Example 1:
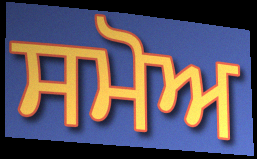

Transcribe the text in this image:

ਸਮੋਅ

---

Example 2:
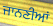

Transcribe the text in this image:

ਜਾਨਣੀਆਂ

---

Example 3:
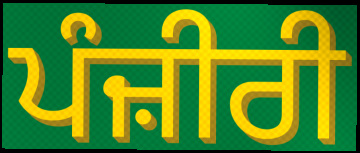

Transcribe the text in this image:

ਪੰਜ਼ੀਰੀ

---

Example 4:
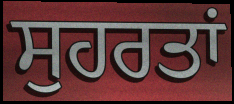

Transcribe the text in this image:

ਸੁਹਰਤਾਂ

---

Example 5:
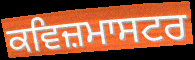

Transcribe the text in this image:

ਕਵਿਜ਼ਮਾਸਟਰ